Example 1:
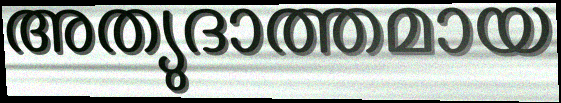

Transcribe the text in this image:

അത്യുദാത്തമായ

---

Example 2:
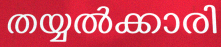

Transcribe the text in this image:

തയ്യൽക്കാരി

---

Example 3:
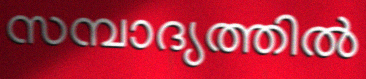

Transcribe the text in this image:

സമ്പാദ്യത്തിൽ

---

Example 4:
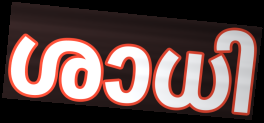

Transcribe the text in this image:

ശാധി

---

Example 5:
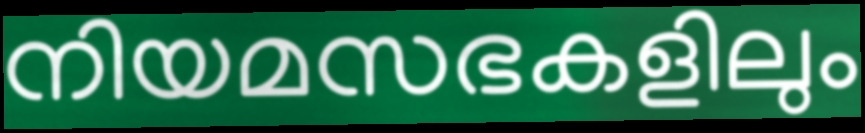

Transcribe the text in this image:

നിയമസഭകളിലും